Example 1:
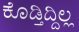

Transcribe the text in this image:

ಕೊಡ್ತಿದ್ದಿಲ್ಲ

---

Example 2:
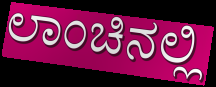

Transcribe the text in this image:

ಲಾಂಚಿನಲ್ಲಿ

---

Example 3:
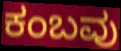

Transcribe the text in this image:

ಕಂಬವು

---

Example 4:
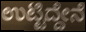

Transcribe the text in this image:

ಉಟ್ಟಿದ್ದೇನೆ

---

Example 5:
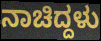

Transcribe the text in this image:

ನಾಚಿದ್ದಳು